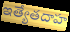
ఇత్యేతదాహ